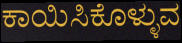
ಕಾಯಿಸಿಕೊಳ್ಳುವ